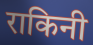
राकिनी